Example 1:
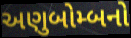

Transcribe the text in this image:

અણુબોમ્બનો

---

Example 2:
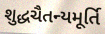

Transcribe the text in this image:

શુદ્ધચૈતન્યમૂર્તિ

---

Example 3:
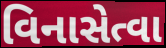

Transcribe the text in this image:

વિનાસેત્વા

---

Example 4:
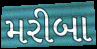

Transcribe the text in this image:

મરીબા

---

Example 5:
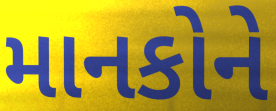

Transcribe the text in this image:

માનકોને